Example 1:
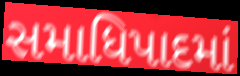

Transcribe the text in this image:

સમાધિપાદમાં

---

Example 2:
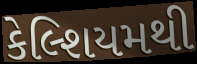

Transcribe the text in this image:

કેલ્શિયમથી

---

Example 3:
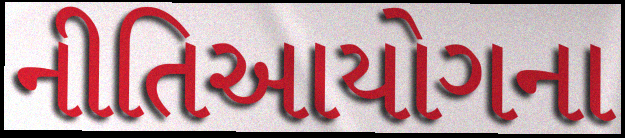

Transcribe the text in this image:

નીતિઆયોગના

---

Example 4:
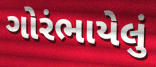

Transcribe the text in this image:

ગોરંભાયેલું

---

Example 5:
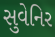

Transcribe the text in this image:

સુવેનિર